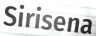
Sirisena